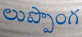
లుప్పొంగ